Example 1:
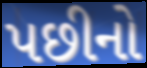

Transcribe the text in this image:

પછીનો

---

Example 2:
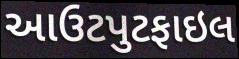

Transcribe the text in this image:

આઉટપુટફાઇલ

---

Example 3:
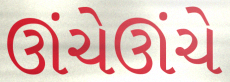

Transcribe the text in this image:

ઊંચેઊંચે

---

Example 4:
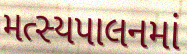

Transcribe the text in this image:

મત્સ્યપાલનમાં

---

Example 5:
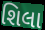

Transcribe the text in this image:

શિલા